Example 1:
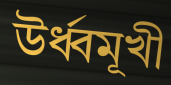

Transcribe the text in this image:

উর্ধ্বমূখী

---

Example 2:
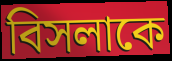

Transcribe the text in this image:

বিসলাকে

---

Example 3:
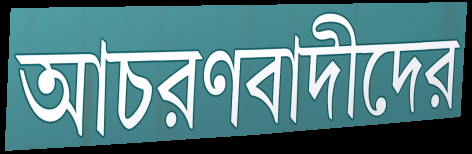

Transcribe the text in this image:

আচরণবাদীদের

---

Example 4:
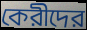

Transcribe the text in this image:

কেরীদের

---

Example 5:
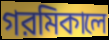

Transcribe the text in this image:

গরমিকালে